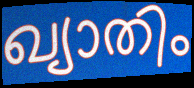
ഖ്യാതിം